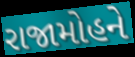
રાજામોહને